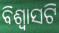
ବିଶ୍ୱାସଟି